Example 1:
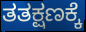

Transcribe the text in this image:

ತತಕ್ಷಣಕ್ಕೆ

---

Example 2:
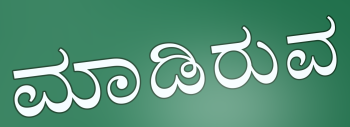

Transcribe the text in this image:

ಮಾಡಿರುವ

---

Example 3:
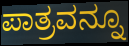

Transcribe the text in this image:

ಪಾತ್ರವನ್ನೂ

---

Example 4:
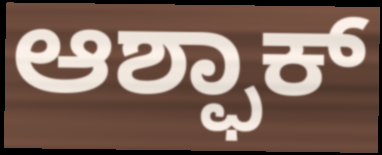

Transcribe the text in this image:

ಆಶ್ಫಾಕ್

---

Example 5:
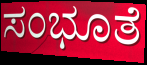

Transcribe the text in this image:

ಸಂಭೂತೆ